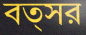
বত্সর